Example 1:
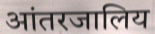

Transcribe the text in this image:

आंतरजालिय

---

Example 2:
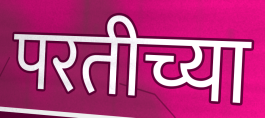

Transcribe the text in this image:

परतीच्या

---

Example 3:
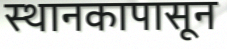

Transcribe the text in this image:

स्थानकापासून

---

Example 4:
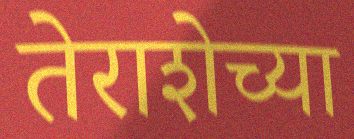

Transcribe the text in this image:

तेराशेच्या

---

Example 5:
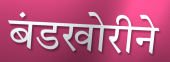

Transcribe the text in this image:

बंडखोरीने